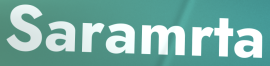
Saramrta